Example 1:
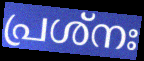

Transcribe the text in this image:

പ്രശ്നഃ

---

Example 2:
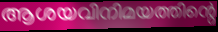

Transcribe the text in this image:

ആശയവിനിമയത്തിന്റെ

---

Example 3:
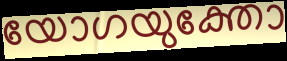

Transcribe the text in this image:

യോഗയുക്തോ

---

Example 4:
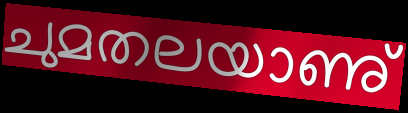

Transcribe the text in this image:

ചുമതലയാണു്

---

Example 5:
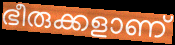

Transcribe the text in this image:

ഭീരുക്കളാണ്